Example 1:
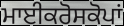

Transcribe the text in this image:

ਮਾਈਕਰੋਸਕੋਪਾਂ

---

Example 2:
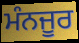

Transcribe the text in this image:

ਮੰਨਜੂਰ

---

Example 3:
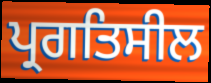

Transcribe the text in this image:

ਪ੍ਰਗਤਿਸੀਲ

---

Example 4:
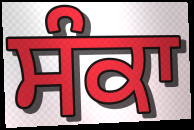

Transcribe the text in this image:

ਸੰਕਾ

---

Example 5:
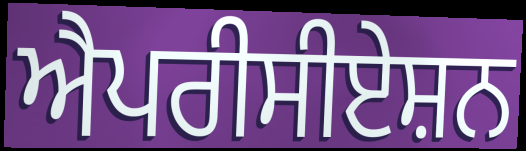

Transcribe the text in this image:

ਐਪਰੀਸੀਏਸ਼ਨ